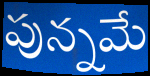
పున్నమే